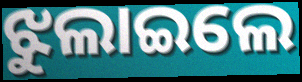
ଝୁଲାଇଲେ